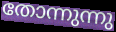
തോന്നുന്നു